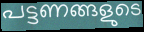
പട്ടണങ്ങളുടെ